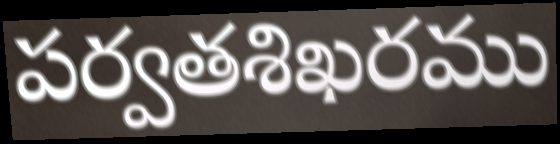
పర్వతశిఖరము